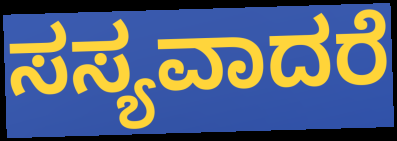
ಸಸ್ಯವಾದರೆ